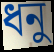
ধনু